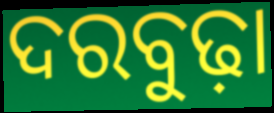
ଦରବୁଢ଼ା